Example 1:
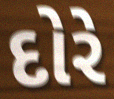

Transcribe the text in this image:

દોરે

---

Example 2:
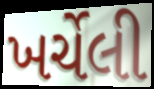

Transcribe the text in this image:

ખર્ચેલી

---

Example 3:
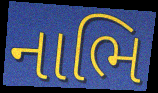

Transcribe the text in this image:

નાભિ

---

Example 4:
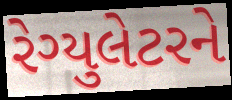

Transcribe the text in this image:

રેગ્યુલેટરને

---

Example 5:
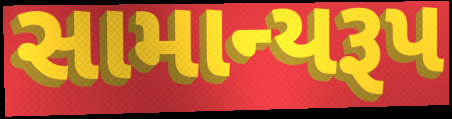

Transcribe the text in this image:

સામાન્યરૂપ